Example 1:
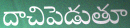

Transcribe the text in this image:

దాచిపెడుతూ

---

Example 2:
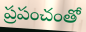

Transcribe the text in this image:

ప్రపంచంతో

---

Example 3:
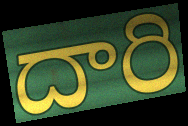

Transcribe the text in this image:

దారి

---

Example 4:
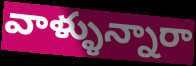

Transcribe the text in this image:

వాళ్ళున్నారా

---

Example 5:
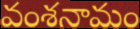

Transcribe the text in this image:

వంశనామం